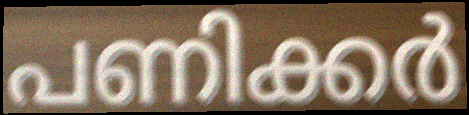
പണിക്കർ